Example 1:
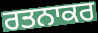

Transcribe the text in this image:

ਰਤਨਾਕਰ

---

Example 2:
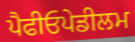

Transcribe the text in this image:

ਪੈਫੀਓਪੇਡੀਲਮ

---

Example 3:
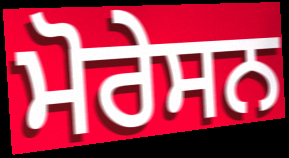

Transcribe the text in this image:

ਮੋਰੇਸਨ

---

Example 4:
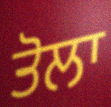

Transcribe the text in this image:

ਤੋਲਾ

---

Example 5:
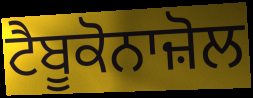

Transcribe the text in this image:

ਟੈਬੂਕੋਨਾਜ਼ੋਲ